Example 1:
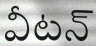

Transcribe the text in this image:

వీటన్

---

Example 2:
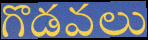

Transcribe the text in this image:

గొడవలు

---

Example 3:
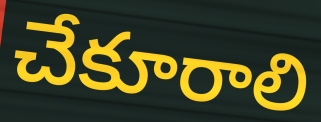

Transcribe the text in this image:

చేకూరాలి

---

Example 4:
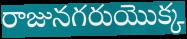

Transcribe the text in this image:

రాజునగరుయొక్క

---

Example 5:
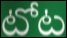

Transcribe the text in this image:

టోట